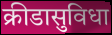
क्रीडासुविधा